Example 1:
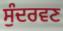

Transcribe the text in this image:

ਸੁੰਦਰਵਣ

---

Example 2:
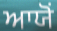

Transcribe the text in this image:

ਆਯੋਂ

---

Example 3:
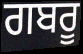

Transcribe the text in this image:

ਗਬਰੂ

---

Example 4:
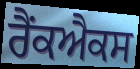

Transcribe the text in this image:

ਰੈਂਕਐਕਸ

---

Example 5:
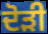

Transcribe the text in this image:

ਦੋੜੀ